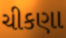
ચીકણા